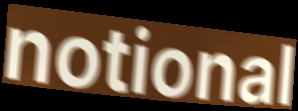
notional